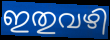
ഇതുവഴി